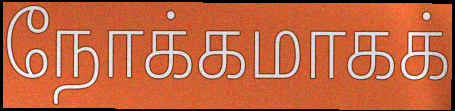
நோக்கமாகக்